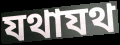
যথাযথ